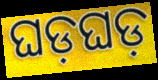
ଘଡ଼ଘଡ଼